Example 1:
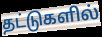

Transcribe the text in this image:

தட்டுகளில்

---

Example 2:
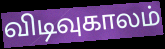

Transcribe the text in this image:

விடிவுகாலம்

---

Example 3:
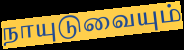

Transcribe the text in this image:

நாயுடுவையும்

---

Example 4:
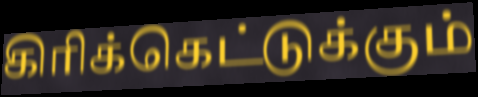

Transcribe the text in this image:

கிரிக்கெட்டுக்கும்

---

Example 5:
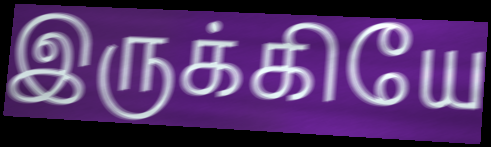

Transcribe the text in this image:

இருக்கியே